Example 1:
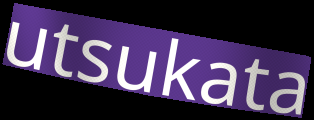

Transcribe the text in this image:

utsukata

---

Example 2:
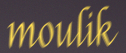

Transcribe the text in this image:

moulik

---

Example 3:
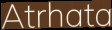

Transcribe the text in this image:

Atrhata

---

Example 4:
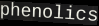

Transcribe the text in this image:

phenolics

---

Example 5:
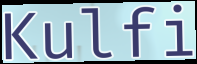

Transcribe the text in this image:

Kulfi